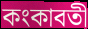
কংকাবতী